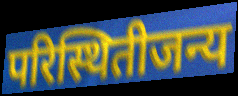
परिस्थितीजन्य